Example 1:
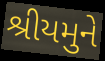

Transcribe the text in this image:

શ્રીયમુને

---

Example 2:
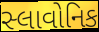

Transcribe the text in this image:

સ્લાવોનિક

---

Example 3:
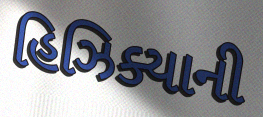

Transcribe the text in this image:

હિઝિક્યાની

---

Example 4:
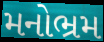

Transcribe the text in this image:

મનોભ્રમ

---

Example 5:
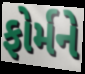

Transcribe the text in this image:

ફોર્મને